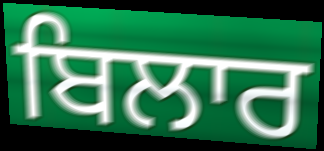
ਬਿਲਾਰ